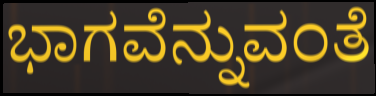
ಭಾಗವೆನ್ನುವಂತೆ